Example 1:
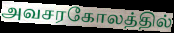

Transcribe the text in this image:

அவசரகோலத்தில்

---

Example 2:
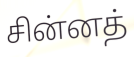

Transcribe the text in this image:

சின்னத்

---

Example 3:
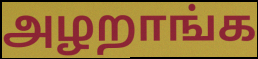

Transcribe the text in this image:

அழறாங்க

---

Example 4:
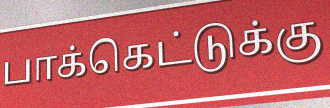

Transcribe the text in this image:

பாக்கெட்டுக்கு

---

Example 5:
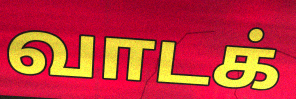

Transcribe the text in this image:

வாடக்